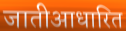
जातीआधारित